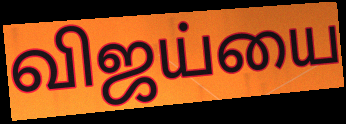
விஜய்யை